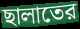
ছালাতের